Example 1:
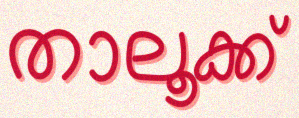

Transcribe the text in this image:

താലൂക്ക്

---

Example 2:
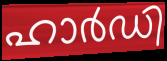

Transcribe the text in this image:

ഹാർഡി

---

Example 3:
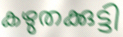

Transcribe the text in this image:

കഴുതക്കുട്ടി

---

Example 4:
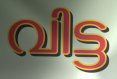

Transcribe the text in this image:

വിട്ട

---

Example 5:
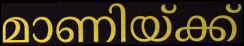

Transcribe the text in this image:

മാണിയ്ക്ക്